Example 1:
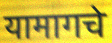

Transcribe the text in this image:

यामागचे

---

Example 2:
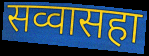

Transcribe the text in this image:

सव्वासहा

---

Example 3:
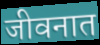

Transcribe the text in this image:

जीवनात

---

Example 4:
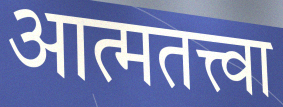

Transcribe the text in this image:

आत्मतत्त्वा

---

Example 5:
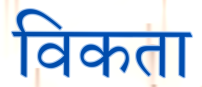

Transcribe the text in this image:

विकता